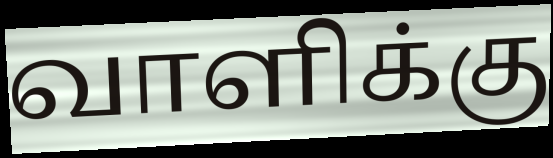
வாளிக்கு